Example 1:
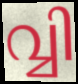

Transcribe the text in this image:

വ്വി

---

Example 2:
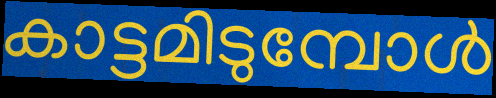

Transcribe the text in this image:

കാട്ടമിടുമ്പോൾ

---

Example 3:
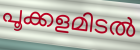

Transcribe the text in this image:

പൂക്കളമിടൽ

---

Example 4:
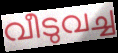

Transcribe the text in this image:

വീടുവച്ച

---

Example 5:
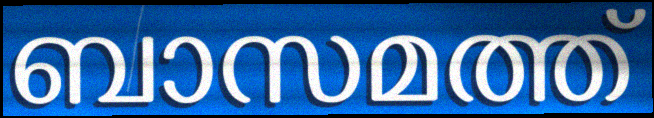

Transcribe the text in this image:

ബാസമത്ത്